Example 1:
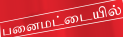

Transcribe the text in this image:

பனைமட்டையில்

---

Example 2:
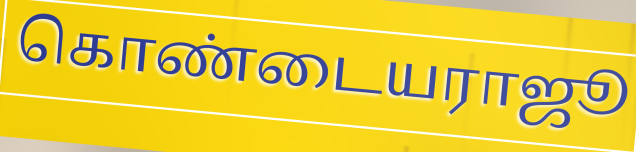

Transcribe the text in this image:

கொண்டையராஜூ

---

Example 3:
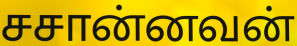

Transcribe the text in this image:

சசான்னவன்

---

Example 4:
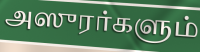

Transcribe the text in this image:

அஸுரர்களும்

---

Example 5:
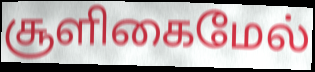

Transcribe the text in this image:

சூளிகைமேல்